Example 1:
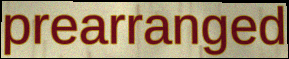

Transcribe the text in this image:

prearranged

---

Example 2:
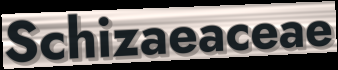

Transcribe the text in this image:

Schizaeaceae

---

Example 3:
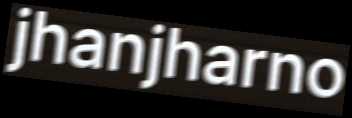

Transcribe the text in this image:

jhanjharno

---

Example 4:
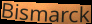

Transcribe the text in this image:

Bismarck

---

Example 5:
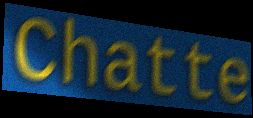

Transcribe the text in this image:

Chatte